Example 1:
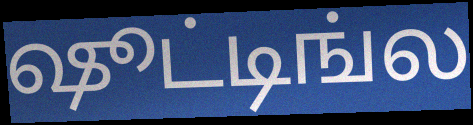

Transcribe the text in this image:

ஷூட்டிங்ல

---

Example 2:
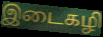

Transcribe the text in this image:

இடைகழி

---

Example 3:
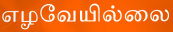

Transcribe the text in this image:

எழவேயில்லை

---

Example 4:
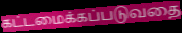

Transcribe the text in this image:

கட்டமைக்கப்படுவதை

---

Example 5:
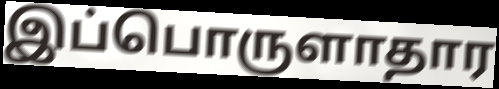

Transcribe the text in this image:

இப்பொருளாதார